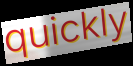
quickly